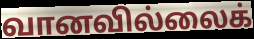
வானவில்லைக்